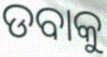
ଡବାକୁ